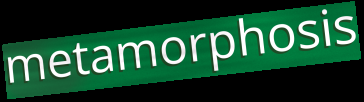
metamorphosis